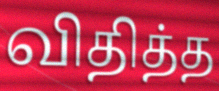
விதித்த